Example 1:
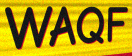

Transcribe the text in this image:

WAQF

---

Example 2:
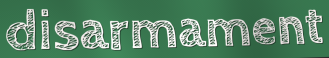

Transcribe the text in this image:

disarmament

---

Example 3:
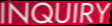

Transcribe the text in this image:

INQUIRY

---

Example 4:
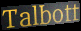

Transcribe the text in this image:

Talbott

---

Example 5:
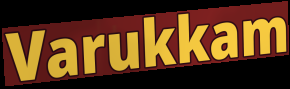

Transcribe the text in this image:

Varukkam